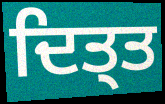
ਦਿਤ੍ਤ